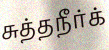
சுத்தநீர்க்